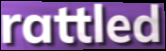
rattled